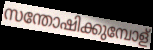
സന്തോഷിക്കുമ്പോള്